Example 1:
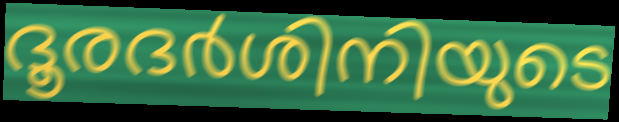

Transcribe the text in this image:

ദൂരദർശിനിയുടെ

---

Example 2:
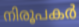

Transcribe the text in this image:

നിരൂപകർ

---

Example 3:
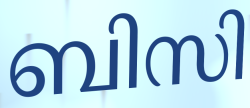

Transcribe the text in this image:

ബിസി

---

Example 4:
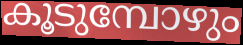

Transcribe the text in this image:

കൂടുമ്പോഴും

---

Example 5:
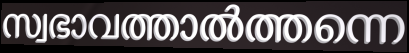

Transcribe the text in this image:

സ്വഭാവത്താൽത്തന്നെ